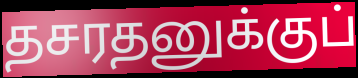
தசரதனுக்குப்